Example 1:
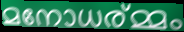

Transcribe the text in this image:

മനോധര്മ്മം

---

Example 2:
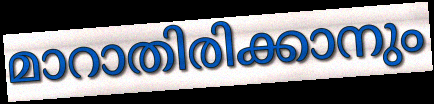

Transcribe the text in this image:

മാറാതിരിക്കാനും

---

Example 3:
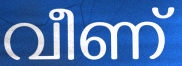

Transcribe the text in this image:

വീണ്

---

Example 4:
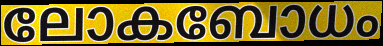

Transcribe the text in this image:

ലോകബോധം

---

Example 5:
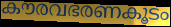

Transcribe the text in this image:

കൗരവഭരണകൂടം